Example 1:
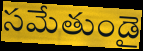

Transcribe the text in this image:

సమేతుండై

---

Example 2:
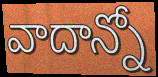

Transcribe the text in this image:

వాదాన్నో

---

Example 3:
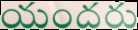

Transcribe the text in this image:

యందరు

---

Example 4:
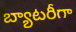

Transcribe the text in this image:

బ్యాటరీగా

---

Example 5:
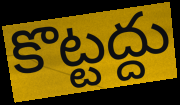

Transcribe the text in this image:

కొట్టద్దు